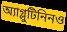
অ্যাগ্লুটিনিনও